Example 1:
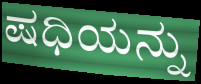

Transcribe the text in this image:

ಷಧಿಯನ್ನು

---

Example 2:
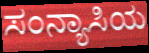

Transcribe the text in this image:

ಸಂನ್ಯಾಸಿಯ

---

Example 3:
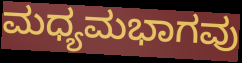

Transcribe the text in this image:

ಮಧ್ಯಮಭಾಗವು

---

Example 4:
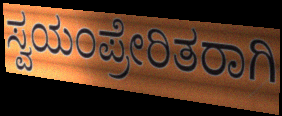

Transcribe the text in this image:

ಸ್ವಯಂಪ್ರೇರಿತರಾಗಿ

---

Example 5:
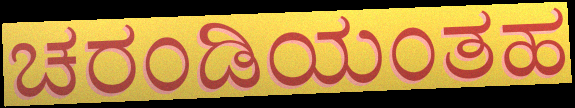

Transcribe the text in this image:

ಚರಂಡಿಯಂತಹ